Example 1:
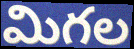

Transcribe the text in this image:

మిగల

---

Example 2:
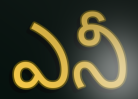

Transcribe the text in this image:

ఎనీ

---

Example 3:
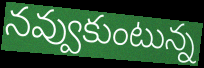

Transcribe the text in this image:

నవ్వుకుంటున్న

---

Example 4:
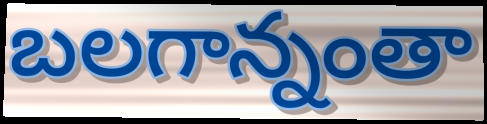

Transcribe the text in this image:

బలగాన్నంతా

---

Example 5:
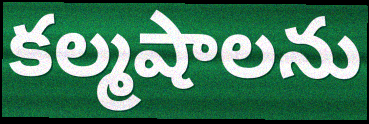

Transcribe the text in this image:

కల్మషాలను